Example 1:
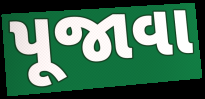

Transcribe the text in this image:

પૂજાવા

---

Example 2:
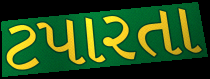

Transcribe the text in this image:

ટપારતા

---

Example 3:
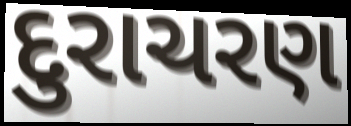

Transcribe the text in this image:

દુરાચરણ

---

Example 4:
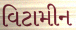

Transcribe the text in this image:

વિટામીન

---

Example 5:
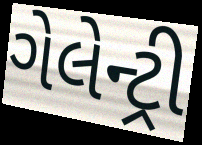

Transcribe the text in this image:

ગેલેન્ટ્રી